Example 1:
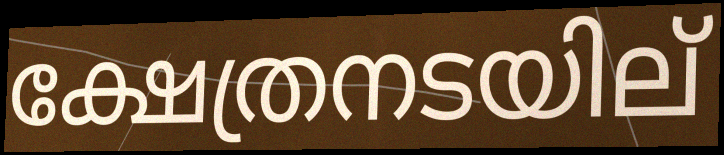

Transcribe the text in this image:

ക്ഷേത്രനടയില്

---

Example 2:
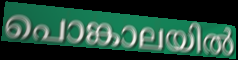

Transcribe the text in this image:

പൊങ്കാലയിൽ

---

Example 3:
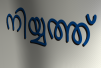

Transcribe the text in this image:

നിയ്യത്ത്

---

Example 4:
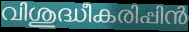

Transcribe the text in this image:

വിശുദ്ധീകരിപ്പിൻ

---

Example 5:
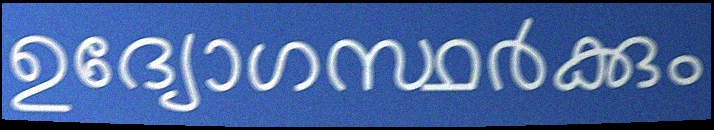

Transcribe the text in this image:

ഉദ്യോഗസ്ഥർക്കും